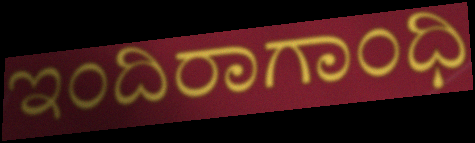
ಇಂದಿರಾಗಾಂಧಿ